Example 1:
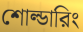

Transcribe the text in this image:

শোল্ডারিং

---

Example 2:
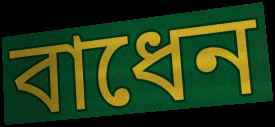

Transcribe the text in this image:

বাধেন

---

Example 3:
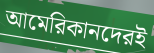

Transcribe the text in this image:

আমেরিকানদেরই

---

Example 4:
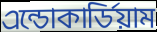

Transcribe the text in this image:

এন্ডোকার্ডিয়াম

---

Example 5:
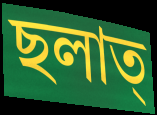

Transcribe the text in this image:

ছলাত্